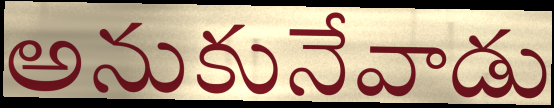
అనుకునేవాడు